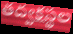
తద్వక్షస్థల